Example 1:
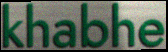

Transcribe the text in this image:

khabhe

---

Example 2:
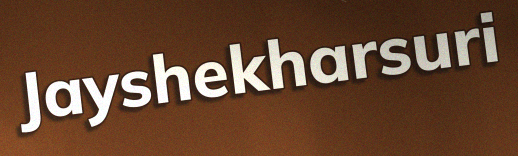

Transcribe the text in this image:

Jayshekharsuri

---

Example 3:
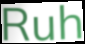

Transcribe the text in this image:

Ruh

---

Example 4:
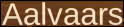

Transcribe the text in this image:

Aalvaars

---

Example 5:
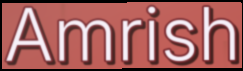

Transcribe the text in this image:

Amrish